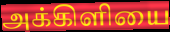
அக்கிளியை